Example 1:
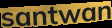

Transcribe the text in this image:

santwan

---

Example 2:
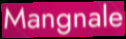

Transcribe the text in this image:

Mangnale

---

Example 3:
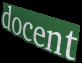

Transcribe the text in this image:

docent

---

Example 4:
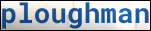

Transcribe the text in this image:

ploughman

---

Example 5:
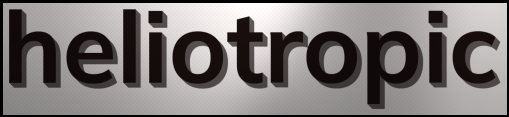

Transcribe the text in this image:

heliotropic